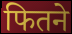
फितने